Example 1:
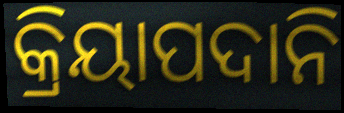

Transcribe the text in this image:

କ୍ରିୟାପଦାନି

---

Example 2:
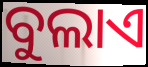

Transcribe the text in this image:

ବୁଲାଏ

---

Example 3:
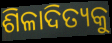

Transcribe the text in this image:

ଶିଳାଦିତ୍ୟକୁ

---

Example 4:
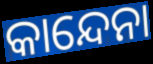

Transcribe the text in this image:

କାନ୍ଦେନା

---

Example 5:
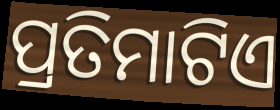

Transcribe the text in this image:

ପ୍ରତିମାଟିଏ